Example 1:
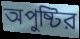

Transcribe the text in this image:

অপুষ্টির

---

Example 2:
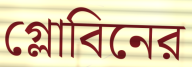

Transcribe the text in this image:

গ্লোবিনের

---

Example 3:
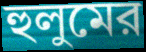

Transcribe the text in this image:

হুলুমের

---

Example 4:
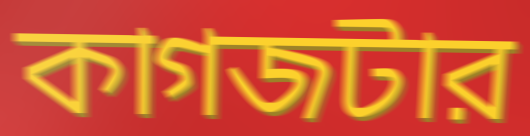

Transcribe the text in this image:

কাগজটার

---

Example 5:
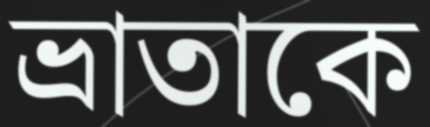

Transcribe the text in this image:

ভ্রাতাকে